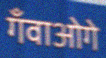
गँवाओगे